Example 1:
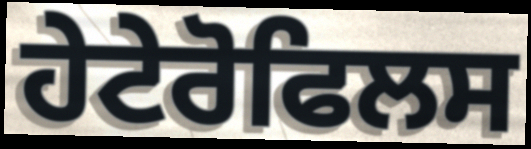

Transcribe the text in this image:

ਹੇਟੇਰੋਫਿਲਸ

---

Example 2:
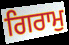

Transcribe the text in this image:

ਗਿਰਾਮੁ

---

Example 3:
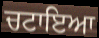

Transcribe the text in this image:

ਚਟਾਇਆ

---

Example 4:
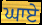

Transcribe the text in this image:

ਘਾਏ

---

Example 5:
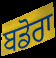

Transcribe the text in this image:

ਬਡੋਰਾ